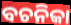
ବଚନିକା